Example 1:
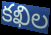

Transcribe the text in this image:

కఖిల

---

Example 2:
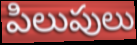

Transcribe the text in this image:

పిలుపులు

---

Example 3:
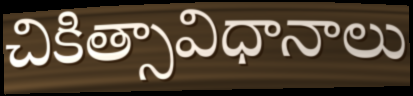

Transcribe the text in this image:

చికిత్సావిధానాలు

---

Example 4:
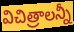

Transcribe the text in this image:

విచిత్రాలన్నీ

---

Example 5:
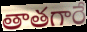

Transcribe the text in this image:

తాతగారే